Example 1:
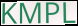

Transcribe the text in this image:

KMPL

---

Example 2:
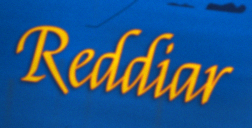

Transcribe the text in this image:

Reddiar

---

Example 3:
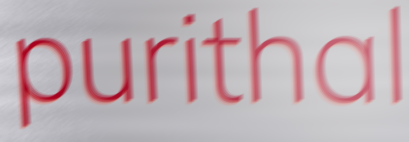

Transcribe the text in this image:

purithal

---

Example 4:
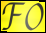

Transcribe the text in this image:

FO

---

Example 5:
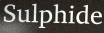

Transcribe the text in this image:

Sulphide